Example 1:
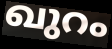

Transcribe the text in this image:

ഖുറം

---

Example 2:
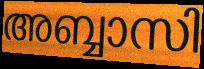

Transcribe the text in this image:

അബ്ബാസി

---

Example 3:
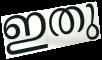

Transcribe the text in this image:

ഇതു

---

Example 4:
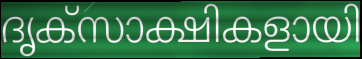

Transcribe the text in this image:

ദൃക്സാക്ഷികളായി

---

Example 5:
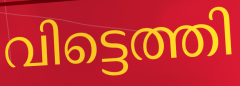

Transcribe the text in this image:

വിട്ടെത്തി